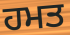
ਹਮਤ